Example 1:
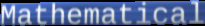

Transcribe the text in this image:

Mathematical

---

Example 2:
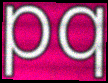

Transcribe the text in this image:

pq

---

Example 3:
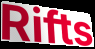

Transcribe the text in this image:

Rifts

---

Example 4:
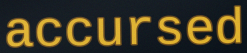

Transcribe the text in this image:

accursed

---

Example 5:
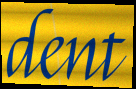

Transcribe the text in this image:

dent